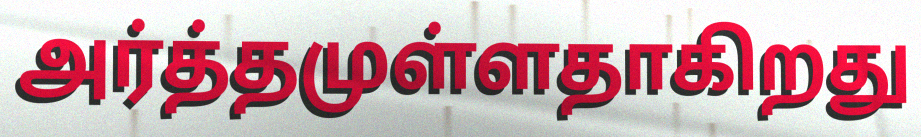
அர்த்தமுள்ளதாகிறது